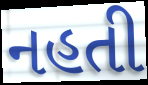
નહતી